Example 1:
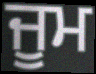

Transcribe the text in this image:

ਜੂਮ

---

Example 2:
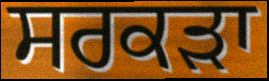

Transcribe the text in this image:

ਸਰਕੜਾ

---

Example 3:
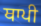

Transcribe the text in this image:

ਥਾਪੀ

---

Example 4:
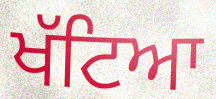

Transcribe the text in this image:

ਖੱਟਿਆ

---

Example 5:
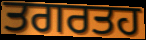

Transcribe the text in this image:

ਤਗਰਤਹ